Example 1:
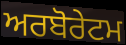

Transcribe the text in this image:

ਅਰਬੋਰੇਟਮ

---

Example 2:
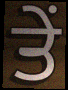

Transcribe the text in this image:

ਤੇੰ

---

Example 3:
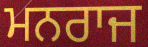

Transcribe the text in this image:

ਮਨਰਾਜ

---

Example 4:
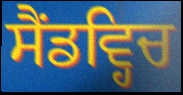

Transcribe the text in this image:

ਸੈਂਡਵ੍ਹਿਚ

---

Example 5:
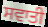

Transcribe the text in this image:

ਸਵਾਤੀ